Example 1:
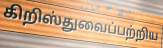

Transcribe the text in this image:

கிறிஸ்துவைப்பற்றிய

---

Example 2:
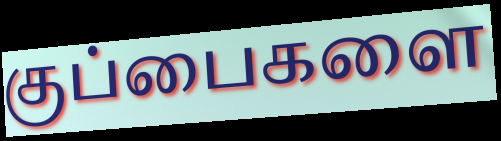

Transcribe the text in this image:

குப்பைகளை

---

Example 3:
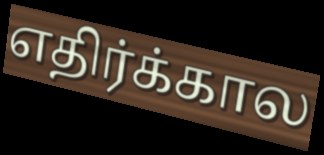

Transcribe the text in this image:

எதிர்க்கால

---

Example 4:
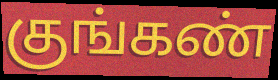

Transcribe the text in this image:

குங்கண்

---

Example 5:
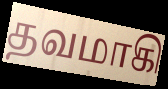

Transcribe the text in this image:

தவமாகி